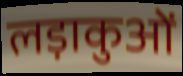
लड़ाकुओं